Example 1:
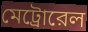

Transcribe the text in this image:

মেট্রোরেল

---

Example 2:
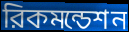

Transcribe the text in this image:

রিকমন্ডেশন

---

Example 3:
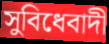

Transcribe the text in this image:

সুবিধেবাদী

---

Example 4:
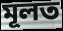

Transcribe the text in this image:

মূলত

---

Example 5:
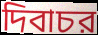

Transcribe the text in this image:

দিবাচর